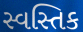
સ્વસ્તિક